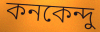
কনকেন্দু